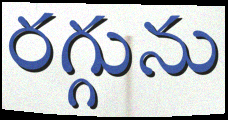
రగ్గును